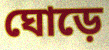
ঘোড়ে